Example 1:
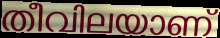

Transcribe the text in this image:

തീവിലയാണ്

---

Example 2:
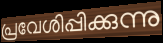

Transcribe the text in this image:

പ്രവേശിപ്പിക്കുന്നു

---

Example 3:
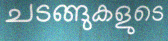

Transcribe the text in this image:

ചടങ്ങുകളുടെ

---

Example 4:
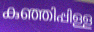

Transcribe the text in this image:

കുഞ്ഞിപ്പിള്ള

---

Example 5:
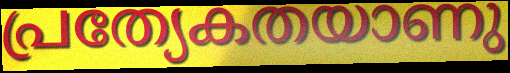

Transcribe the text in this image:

പ്രത്യേകതയാണു